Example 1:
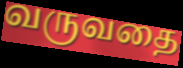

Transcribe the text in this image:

வருவதை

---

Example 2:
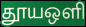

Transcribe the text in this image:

தூயஒளி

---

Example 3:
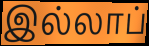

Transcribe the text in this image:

இல்லாப்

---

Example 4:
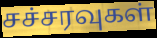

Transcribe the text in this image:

சச்சரவுகள்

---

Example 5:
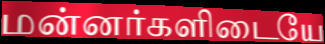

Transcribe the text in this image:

மன்னர்களிடையே